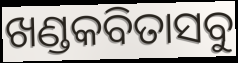
ଖଣ୍ଡକବିତାସବୁ